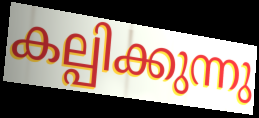
കല്പിക്കുന്നു